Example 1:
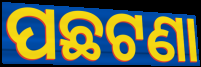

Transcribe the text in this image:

ପଛଟଣା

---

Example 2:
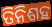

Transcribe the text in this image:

ତିନିଶହ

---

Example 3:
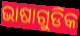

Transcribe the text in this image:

ଭାଷାଗୁଡିକ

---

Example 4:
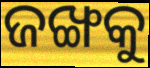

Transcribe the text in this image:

ଜଙ୍ଖକୁ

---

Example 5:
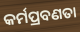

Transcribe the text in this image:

କର୍ମପ୍ରବଣତା